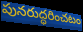
పునరుద్ధరించటం